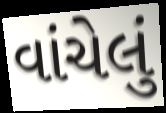
વાંચેલું